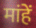
मांहें